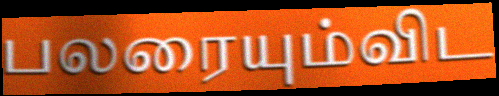
பலரையும்விட